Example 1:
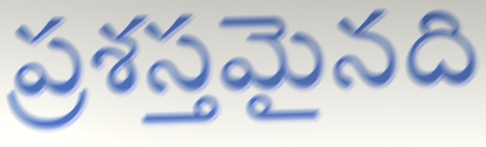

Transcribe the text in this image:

ప్రశస్తమైనది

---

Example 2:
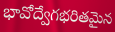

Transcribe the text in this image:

భావోద్వేగభరితమైన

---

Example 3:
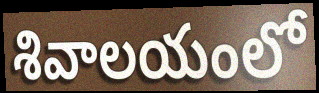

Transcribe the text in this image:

శివాలయంలో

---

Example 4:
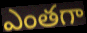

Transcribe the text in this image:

ఎంతగా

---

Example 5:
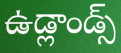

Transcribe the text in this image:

ఉడ్లాండ్స్